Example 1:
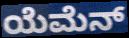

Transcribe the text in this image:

ಯೆಮೆನ್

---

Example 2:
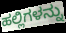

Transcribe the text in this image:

ಹಲ್ಲಿಗಳನ್ನು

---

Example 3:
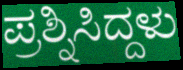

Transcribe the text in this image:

ಪ್ರಶ್ನಿಸಿದ್ದಳು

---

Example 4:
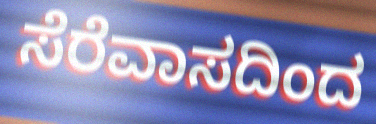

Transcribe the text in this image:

ಸೆರೆವಾಸದಿಂದ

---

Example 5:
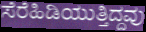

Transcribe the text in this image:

ಸೆರೆಹಿಡಿಯುತ್ತಿದ್ದವು